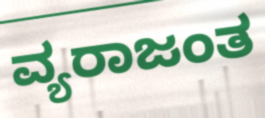
ವ್ಯರಾಜಂತ